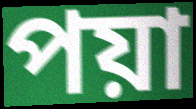
পয়া